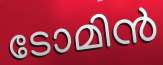
ടോമിൻ